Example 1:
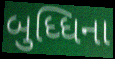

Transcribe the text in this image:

બુધ્ધિના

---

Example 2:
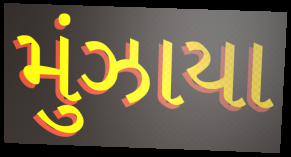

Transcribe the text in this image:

મુંઝાયા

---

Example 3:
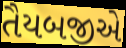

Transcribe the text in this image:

તૈયબજીએ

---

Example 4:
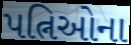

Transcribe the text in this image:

પત્નિઓના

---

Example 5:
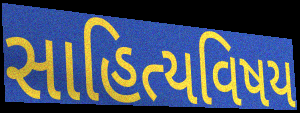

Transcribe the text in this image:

સાહિત્યવિષય